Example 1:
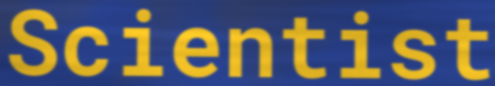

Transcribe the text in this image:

Scientist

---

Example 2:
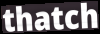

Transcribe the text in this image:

thatch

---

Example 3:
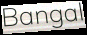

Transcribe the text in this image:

Bangal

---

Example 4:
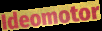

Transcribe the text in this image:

Ideomotor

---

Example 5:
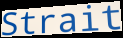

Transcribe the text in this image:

Strait